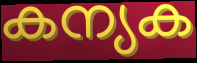
കന്യക